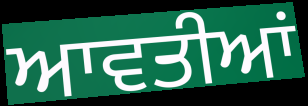
ਆਵਤੀਆਂ